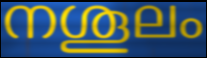
നശൂലം